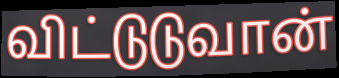
விட்டுடுவான்